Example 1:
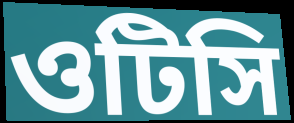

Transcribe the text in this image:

ওটিসি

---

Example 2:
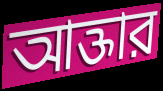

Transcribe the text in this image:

আক্তার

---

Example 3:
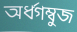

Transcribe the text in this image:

অর্ধগম্বুজ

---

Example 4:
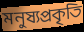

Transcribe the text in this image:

মনুষ্যপ্রকৃতি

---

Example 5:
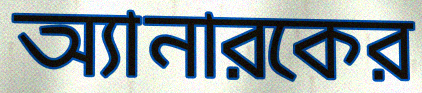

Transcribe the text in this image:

অ্যানারকের